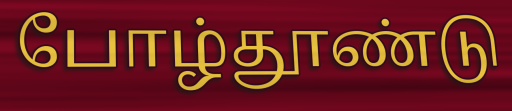
போழ்தூண்டு